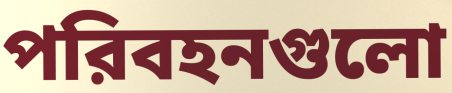
পরিবহনগুলো